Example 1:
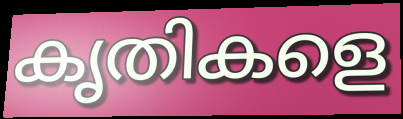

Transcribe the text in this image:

കൃതികളെ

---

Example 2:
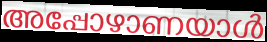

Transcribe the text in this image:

അപ്പോഴാണയാൾ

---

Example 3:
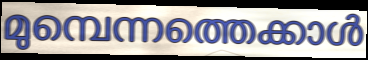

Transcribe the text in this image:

മുമ്പെന്നത്തെക്കാൾ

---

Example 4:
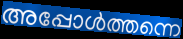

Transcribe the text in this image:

അപ്പോൾത്തന്നെ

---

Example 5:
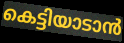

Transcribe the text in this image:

കെട്ടിയാടാൻ